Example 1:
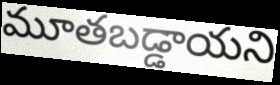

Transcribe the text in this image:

మూతబడ్డాయని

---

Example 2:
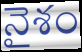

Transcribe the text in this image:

నైశం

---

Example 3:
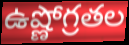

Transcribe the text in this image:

ఉష్ణోగ్రతల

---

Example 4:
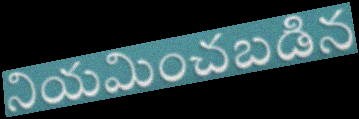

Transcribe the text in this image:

నియమించబడిన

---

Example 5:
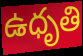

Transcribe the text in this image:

ఉధృతి